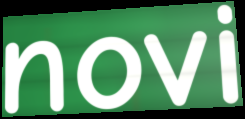
novi